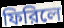
ফিরিলে